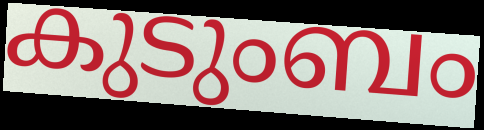
കുടുംബം